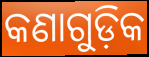
କଣାଗୁଡ଼ିକ